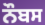
ਨੌਬਸ